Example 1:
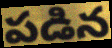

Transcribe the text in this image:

పడిన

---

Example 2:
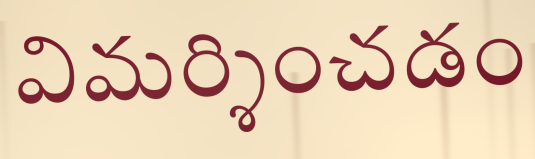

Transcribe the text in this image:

విమర్శించడం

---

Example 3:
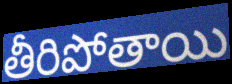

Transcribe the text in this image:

తీరిపోతాయి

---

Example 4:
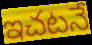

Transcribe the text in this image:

ఇచటనే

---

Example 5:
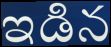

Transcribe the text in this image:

ఇడిన